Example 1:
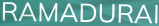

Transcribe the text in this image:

RAMADURAI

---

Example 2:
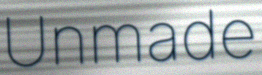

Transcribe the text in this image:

Unmade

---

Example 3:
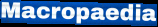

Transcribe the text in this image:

Macropaedia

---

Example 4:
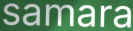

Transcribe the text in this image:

samara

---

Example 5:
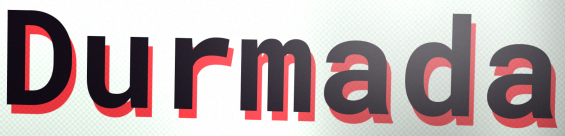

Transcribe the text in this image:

Durmada